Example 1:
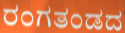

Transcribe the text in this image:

ರಂಗತಂಡದ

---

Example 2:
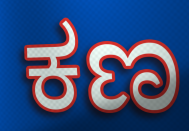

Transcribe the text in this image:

ಕಣ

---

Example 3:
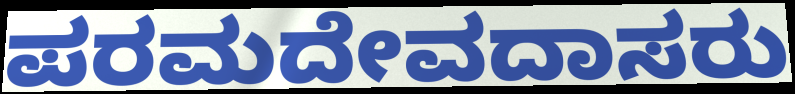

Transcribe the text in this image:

ಪರಮದೇವದಾಸರು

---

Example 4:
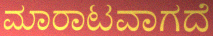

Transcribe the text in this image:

ಮಾರಾಟವಾಗದೆ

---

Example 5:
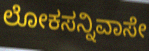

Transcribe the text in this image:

ಲೋಕಸನ್ನಿವಾಸೇ